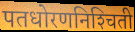
पतधोरणनिश्चिती